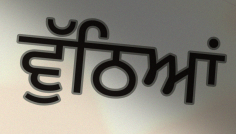
ਵੁੱਠਿਆਂ